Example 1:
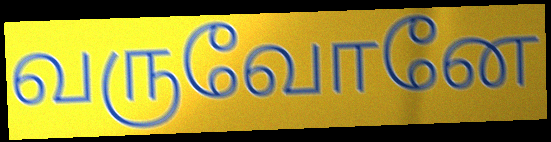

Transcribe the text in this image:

வருவோனே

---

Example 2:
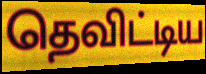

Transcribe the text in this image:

தெவிட்டிய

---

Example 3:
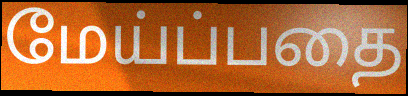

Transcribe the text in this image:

மேய்ப்பதை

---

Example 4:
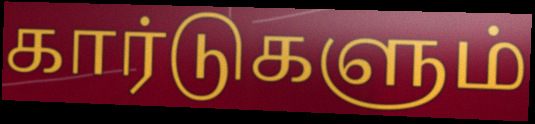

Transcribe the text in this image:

கார்டுகளும்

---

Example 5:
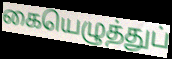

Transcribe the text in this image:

கையெழுத்துப்